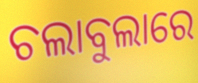
ଚଲାବୁଲାରେ